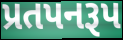
પ્રતપનરૂપ